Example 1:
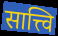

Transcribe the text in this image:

सात्त्वि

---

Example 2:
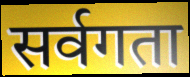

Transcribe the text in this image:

सर्वगता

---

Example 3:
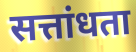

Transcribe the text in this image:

सत्तांधता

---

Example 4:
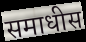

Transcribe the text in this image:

समाधीस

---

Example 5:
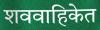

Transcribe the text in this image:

शववाहिकेत